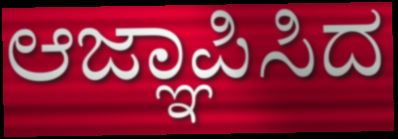
ಆಜ್ಞಾಪಿಸಿದ